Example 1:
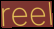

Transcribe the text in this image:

reel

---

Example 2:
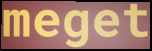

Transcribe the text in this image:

meget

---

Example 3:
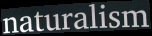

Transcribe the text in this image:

naturalism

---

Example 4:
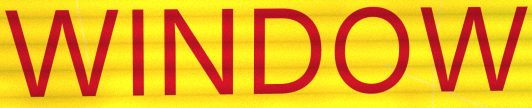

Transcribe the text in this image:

WINDOW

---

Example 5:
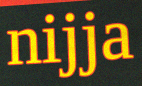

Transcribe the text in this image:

nijja